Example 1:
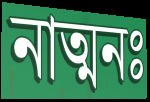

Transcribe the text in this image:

নাত্মনঃ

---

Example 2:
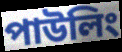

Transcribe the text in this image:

পাউলিং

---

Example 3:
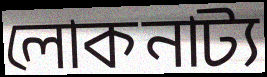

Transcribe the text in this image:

লোকনাট্য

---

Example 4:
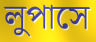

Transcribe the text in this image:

লুপাসে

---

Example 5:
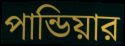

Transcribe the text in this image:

পান্ডিয়ার